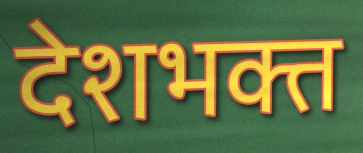
देशभक्त